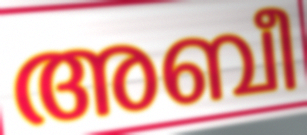
അബീ